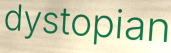
dystopian